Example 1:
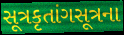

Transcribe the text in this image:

સૂત્રકૃતાંગસૂત્રના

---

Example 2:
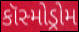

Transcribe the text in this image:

કૉસ્મોડ્રોમ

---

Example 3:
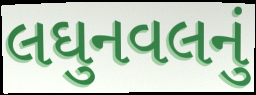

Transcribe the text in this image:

લઘુનવલનું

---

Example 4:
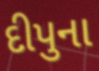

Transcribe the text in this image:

દીપુના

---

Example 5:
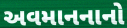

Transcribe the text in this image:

અવમાનનાનો